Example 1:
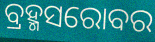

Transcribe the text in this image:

ବ୍ରହ୍ମସରୋବର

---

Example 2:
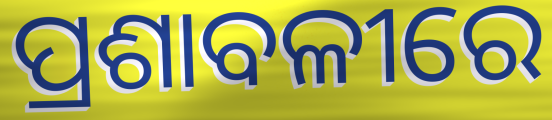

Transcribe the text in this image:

ପ୍ରଶାବଳୀରେ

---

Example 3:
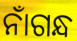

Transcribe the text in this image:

ନାଁଗନ୍ଧ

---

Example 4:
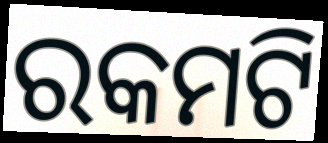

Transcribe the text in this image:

ରକମଟି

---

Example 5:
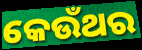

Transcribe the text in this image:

କେଉଁଥର